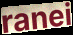
ranei